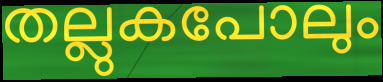
തല്ലുകപോലും